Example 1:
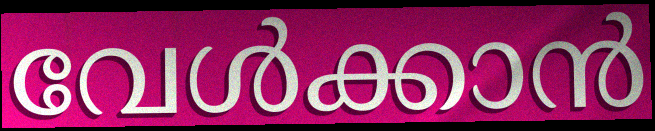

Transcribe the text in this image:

വേൾക്കാൻ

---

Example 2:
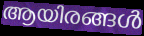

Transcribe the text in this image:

ആയിരങ്ങൾ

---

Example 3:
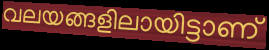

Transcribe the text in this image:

വലയങ്ങളിലായിട്ടാണ്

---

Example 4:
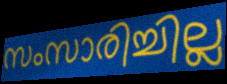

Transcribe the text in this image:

സംസാരിച്ചില്ല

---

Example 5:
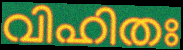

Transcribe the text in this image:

വിഹിതഃ